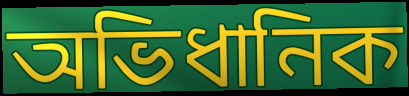
অভিধানিক